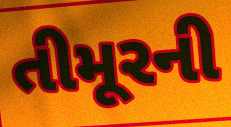
તીમૂરની